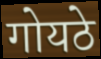
गोयठे